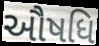
ઔષધિ